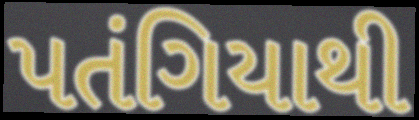
પતંગિયાથી